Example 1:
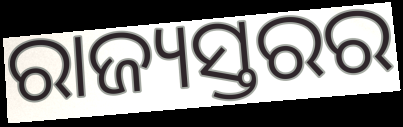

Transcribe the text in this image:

ରାଜ୍ୟସ୍ତରର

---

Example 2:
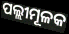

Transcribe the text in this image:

ପଲ୍ଲୀମୂଳକ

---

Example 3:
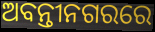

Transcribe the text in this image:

ଅବନ୍ତୀନଗରରେ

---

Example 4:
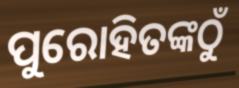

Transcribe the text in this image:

ପୁରୋହିତଙ୍କଠୁଁ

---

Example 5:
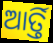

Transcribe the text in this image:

ଆର୍ତ୍ତି